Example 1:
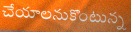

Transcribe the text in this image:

చేయాలనుకొంటున్న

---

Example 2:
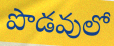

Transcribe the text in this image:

పొడవులో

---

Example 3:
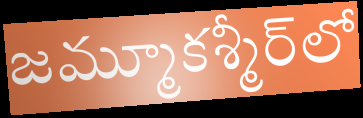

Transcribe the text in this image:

జమ్మూకశ్మీర్‌లో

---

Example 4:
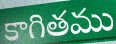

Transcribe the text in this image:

కాగితము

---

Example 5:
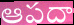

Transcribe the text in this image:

ఆపదా